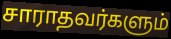
சாராதவர்களும்